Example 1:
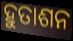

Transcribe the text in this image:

ହୁତାଶନ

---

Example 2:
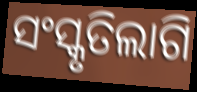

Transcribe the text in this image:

ସଂସ୍କୃତିଲାଗି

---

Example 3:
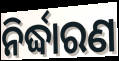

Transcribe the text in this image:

ନିର୍ଦ୍ଧାରଣ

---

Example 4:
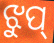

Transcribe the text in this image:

ଝୁପ୍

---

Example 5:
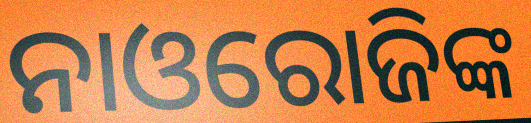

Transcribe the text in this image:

ନାଓରୋଜିଙ୍କ